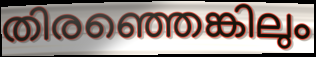
തിരഞ്ഞെങ്കിലും